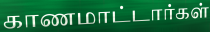
காணமாட்டார்கள்